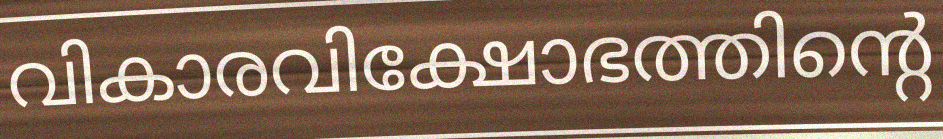
വികാരവിക്ഷോഭത്തിന്റെ